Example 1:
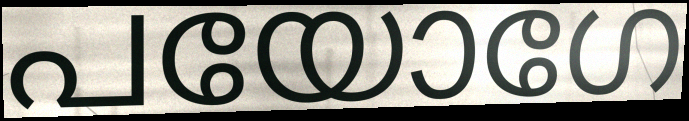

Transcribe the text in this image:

പയോഗേ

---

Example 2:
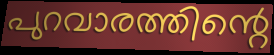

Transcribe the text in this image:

പുറവാരത്തിന്റെ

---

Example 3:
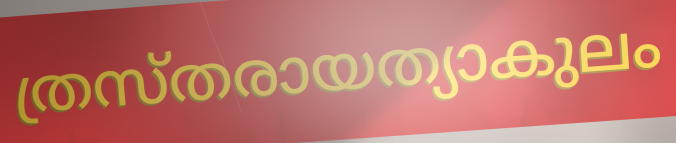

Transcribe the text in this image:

ത്രസ്തരായത്യാകുലം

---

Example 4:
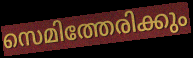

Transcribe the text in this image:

സെമിത്തേരിക്കും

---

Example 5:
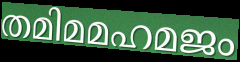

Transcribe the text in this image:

തമിമമഹമജം